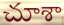
చూశా